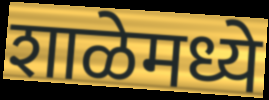
शाळेमध्ये